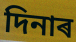
দিনাৰ